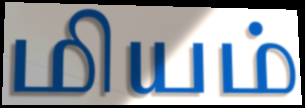
மியம்